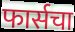
फार्सचा